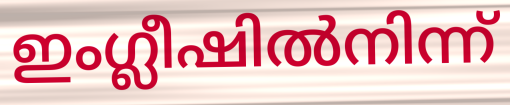
ഇംഗ്ലീഷിൽനിന്ന്